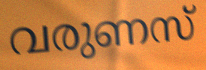
വരുണസ്